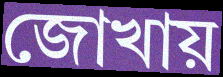
জোখায়